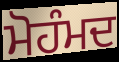
ਮੋਹੰਮਦ